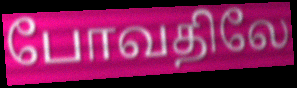
போவதிலே